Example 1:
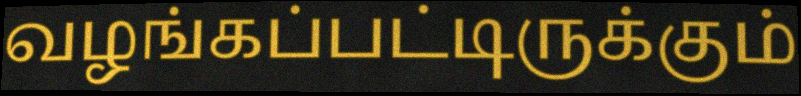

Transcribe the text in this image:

வழங்கப்பட்டிருக்கும்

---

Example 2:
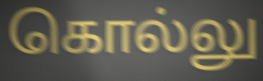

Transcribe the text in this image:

கொல்லு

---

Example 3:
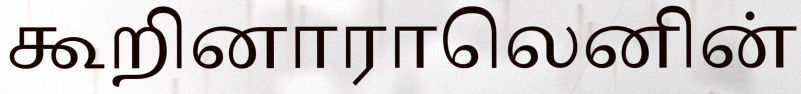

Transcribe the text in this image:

கூறினாராலெனின்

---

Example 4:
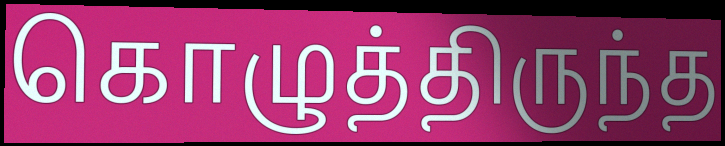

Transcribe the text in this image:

கொழுத்திருந்த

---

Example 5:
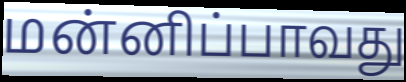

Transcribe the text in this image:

மன்னிப்பாவது